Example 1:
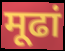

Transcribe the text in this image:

मूढां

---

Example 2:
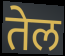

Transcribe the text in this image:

तेल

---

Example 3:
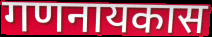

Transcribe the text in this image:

गणनायकास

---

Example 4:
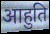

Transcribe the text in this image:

आहुति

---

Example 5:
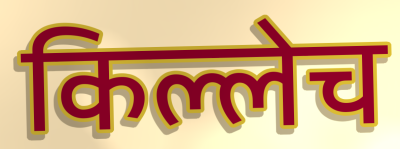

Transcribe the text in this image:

किल्लेच